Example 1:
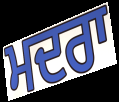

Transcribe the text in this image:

ਮਦਰਾ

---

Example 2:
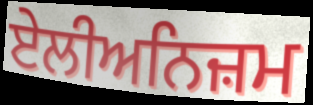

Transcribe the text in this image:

ਏਲੀਅਨਿਜ਼ਮ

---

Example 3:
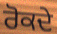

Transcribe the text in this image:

ਰੋਕਦੇ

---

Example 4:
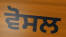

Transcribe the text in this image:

ਵੋਸਲ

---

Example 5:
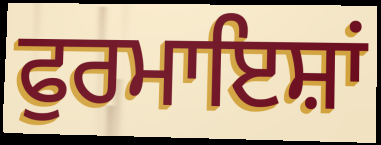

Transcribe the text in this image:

ਫੁਰਮਾਇਸ਼ਾਂ